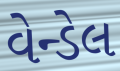
વેન્ડેલ